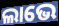
ଲାଭେ